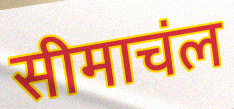
सीमाचंल